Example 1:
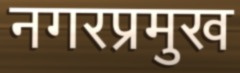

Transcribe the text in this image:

नगरप्रमुख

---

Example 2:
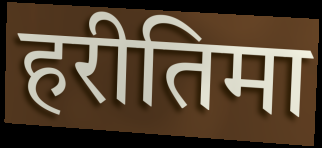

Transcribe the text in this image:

हरीतिमा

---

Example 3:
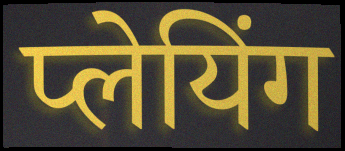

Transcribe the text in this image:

प्लेयिंग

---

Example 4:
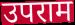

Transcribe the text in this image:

उपराम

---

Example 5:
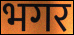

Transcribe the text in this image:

भगर